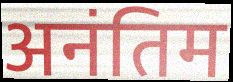
अनंतिम